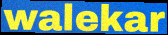
walekar